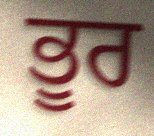
ਭੂਰ